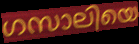
ഗസാലിയെ